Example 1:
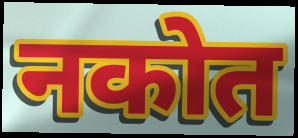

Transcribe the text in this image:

नकोत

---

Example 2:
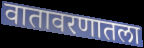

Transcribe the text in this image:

वातावरणातला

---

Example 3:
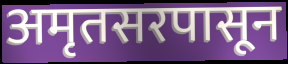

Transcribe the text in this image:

अमृतसरपासून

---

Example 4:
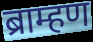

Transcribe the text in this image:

ब्राम्हण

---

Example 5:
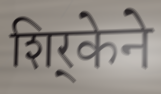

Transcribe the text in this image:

शिर्केने